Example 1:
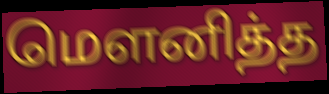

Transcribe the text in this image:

மௌனித்த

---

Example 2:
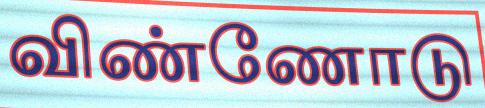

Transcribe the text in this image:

விண்ணோடு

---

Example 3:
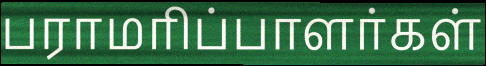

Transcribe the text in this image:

பராமரிப்பாளர்கள்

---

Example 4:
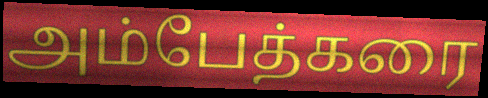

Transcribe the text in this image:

அம்பேத்கரை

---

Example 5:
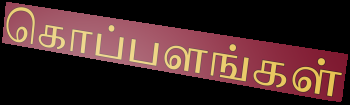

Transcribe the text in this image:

கொப்பளங்கள்